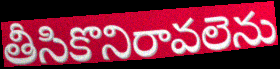
తీసికొనిరావలెను